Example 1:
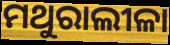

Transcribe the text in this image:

ମଥୁରାଲୀଳା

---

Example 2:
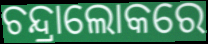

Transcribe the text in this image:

ଚନ୍ଦ୍ରାଲୋକରେ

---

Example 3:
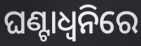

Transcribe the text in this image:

ଘଣ୍ଟାଧ୍ୱନିରେ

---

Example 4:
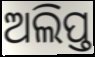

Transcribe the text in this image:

ଅଲିପ୍ତ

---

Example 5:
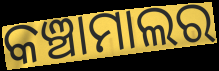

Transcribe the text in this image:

କଞ୍ଚାମାଲର